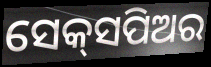
ସେକ୍‌ସପିଅର